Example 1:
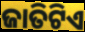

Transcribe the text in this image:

ଜାତିଟିଏ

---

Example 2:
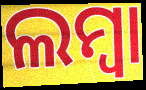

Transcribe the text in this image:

ଲମ୍ବା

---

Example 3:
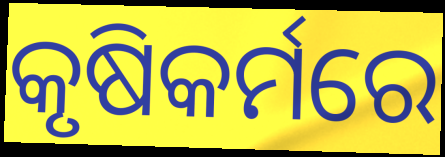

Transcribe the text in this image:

କୃଷିକର୍ମରେ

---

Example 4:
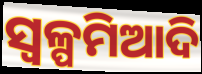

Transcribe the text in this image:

ସ୍ବଳ୍ପମିଆଦି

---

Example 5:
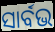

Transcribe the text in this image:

ସାର୍ବଭ